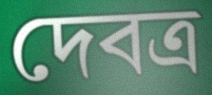
দেবত্র